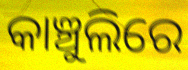
କାଞ୍ଚୁଲିରେ